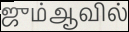
ஜும்ஆவில்